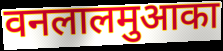
वनलालमुआका